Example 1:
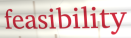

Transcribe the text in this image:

feasibility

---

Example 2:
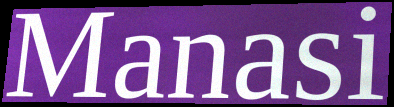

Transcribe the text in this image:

Manasi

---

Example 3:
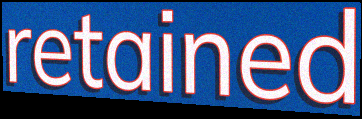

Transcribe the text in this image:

retained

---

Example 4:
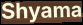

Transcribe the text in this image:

Shyama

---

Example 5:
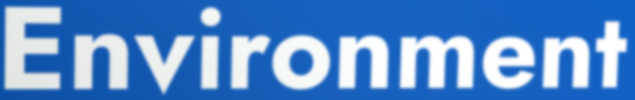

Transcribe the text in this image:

Environment